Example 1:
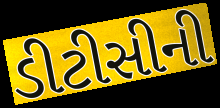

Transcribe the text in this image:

ડીટીસીની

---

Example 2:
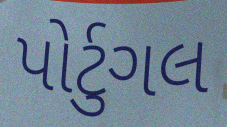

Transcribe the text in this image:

પોર્ટુગલ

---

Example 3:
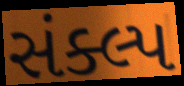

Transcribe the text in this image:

સંક્લ્પ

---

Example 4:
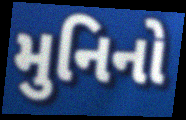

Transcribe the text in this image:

મુનિનો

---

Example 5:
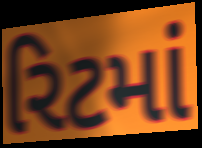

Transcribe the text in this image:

રિટમાં